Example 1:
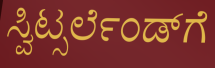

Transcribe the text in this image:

ಸ್ವಿಟ್ಸರ್ಲೆಂಡ್‌ಗೆ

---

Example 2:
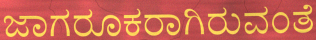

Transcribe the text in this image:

ಜಾಗರೂಕರಾಗಿರುವಂತೆ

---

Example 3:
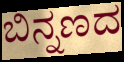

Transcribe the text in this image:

ಬಿನ್ನಣದ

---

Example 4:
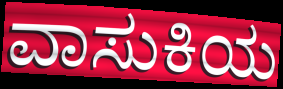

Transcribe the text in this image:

ವಾಸುಕಿಯ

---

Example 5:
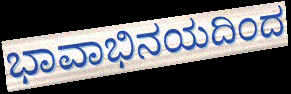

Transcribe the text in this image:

ಭಾವಾಭಿನಯದಿಂದ